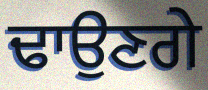
ਢਾਉਣਗੇ